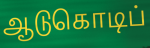
ஆடுகொடிப்